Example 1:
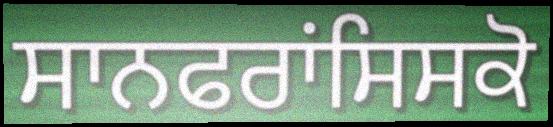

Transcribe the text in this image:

ਸਾਨਫਰਾਂਸਿਸਕੋ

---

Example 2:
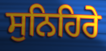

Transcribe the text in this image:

ਸੁਨਿਹਿਰੇ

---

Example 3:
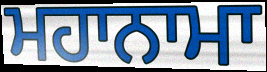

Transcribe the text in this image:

ਮਹਾਨਾਮਾ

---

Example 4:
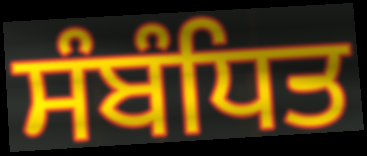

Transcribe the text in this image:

ਸੰਬੰਧਿਤ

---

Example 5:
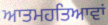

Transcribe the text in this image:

ਆਤਮਹਤਿਆਵਾਂ